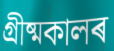
গ্ৰীষ্মকালৰ